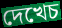
দেখেচ